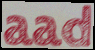
aad